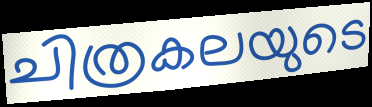
ചിത്രകലയുടെ